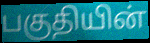
பகுதியின்